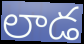
లాడ